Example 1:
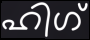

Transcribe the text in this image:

ഹിഗ്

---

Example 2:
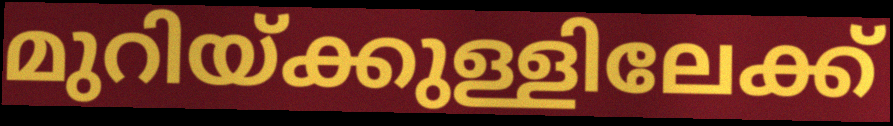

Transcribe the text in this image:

മുറിയ്ക്കുള്ളിലേക്ക്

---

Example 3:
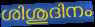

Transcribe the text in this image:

ശിശുദിനം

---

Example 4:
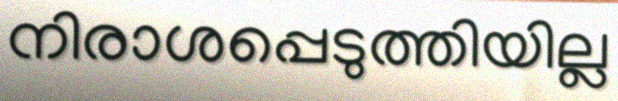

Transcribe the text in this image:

നിരാശപ്പെടുത്തിയില്ല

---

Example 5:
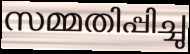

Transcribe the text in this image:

സമ്മതിപ്പിച്ചു